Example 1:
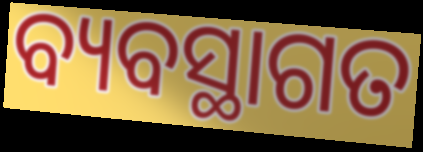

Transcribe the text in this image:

ବ୍ୟବସ୍ଥାଗତ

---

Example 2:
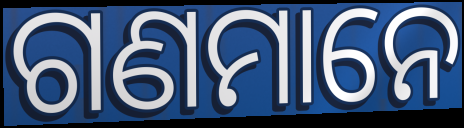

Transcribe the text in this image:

ଗଣମାନେ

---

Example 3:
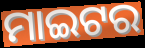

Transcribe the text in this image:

ମାଇଟର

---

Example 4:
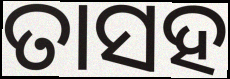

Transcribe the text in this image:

ତାସହ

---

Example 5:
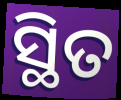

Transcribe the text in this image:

ସ୍ଥିତ